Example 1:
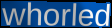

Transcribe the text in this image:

whorled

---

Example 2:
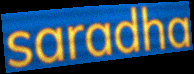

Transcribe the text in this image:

saradha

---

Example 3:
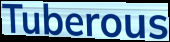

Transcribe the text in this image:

Tuberous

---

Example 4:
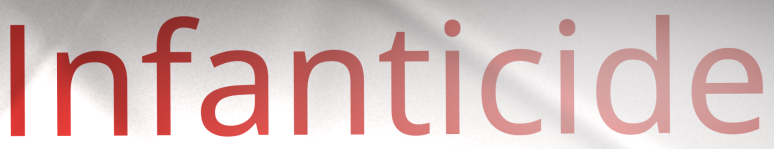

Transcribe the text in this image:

Infanticide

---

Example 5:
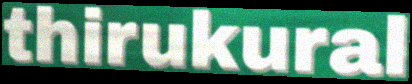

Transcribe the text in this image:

thirukural